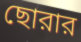
ছোরার